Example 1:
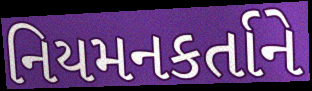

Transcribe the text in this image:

નિયમનકર્તાને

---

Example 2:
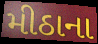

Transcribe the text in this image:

મીઠાના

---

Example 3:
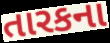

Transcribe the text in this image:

તારકના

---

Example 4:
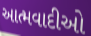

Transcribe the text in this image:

આત્મવાદીઓ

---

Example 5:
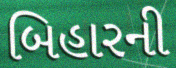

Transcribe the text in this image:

બિહારની